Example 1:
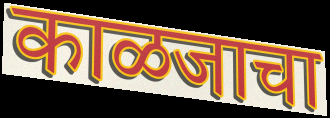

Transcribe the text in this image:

काळजाचा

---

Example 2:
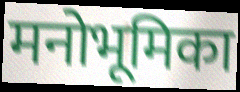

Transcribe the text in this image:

मनोभूमिका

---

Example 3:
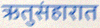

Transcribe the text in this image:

ऋतुसंहारात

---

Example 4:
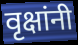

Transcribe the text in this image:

वृक्षांनी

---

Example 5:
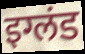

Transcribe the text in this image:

इग्लंड